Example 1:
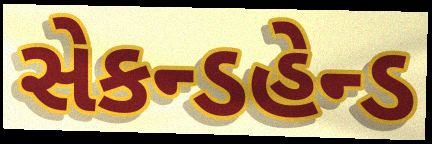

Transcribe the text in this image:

સેકન્ડહેન્ડ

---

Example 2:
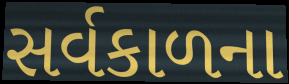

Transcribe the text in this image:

સર્વકાળના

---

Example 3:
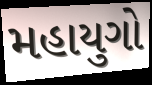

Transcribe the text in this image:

મહાયુગો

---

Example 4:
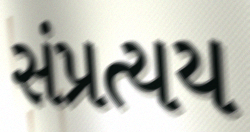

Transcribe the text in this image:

સંપ્રત્યય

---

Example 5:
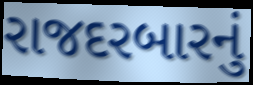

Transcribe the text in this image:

રાજદરબારનું